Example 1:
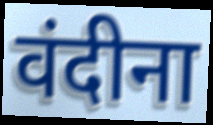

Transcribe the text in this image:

वंदीना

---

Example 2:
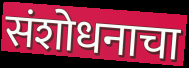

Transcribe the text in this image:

संशोधनाचा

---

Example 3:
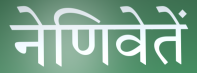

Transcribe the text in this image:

नेणिवेतें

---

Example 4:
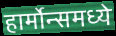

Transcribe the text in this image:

हार्मोन्समध्ये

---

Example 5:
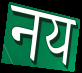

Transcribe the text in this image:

नय